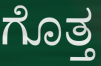
ಗೊತ್ತ